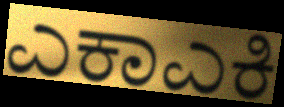
ಎಕಾಎಕಿ